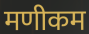
मणीकम